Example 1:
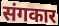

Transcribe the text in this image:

संगकार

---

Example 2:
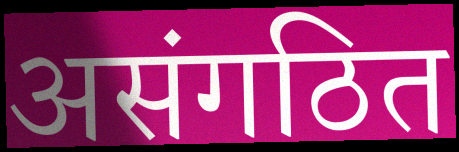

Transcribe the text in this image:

असंगठित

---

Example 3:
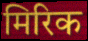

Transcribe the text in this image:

मिरिक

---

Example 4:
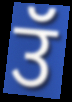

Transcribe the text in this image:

उॅ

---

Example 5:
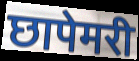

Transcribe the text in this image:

छापेमरी